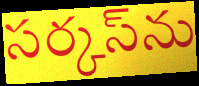
సర్కస్‌ను